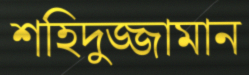
শহিদুজ্জামান